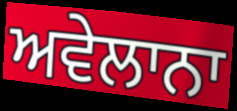
ਅਵੇਲਾਨਾ